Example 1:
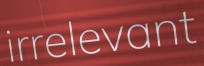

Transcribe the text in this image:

irrelevant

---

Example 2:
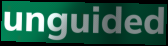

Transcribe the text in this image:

unguided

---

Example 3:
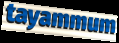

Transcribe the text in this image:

tayammum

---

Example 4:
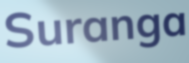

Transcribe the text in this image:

Suranga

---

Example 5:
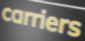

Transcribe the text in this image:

carriers